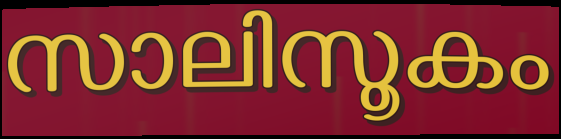
സാലിസൂകം